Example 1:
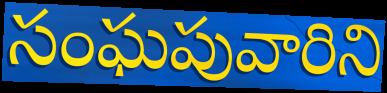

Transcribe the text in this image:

సంఘపువారిని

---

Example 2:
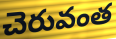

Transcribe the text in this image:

చెరువంత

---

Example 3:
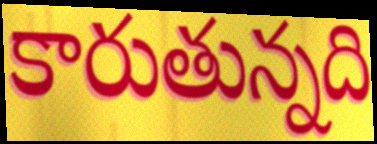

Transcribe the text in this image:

కారుతున్నది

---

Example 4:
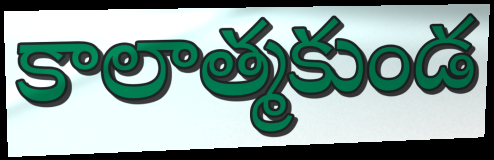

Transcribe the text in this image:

కాలాత్మకుండ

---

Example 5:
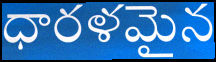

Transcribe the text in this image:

ధారళమైన